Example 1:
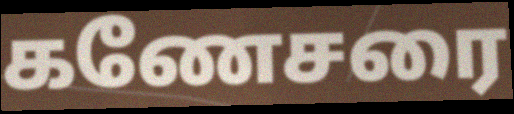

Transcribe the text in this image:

கணேசரை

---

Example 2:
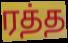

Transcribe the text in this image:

ரத்த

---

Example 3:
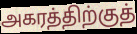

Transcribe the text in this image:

அகரத்திற்குத்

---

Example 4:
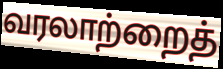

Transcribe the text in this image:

வரலாற்றைத்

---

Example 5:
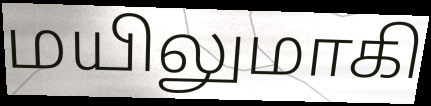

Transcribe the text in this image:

மயிலுமாகி